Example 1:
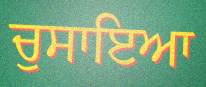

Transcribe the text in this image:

ਚੁਸਾਇਆ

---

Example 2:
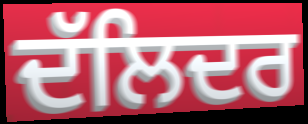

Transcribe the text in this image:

ਦੱਲਿਦਰ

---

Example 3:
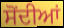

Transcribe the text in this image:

ਸੋਂਦੀਆਂ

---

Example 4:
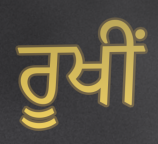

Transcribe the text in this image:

ਰੂਖੀਂ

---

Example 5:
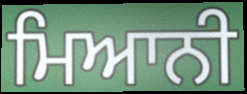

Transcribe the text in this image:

ਮਿਆਨੀ